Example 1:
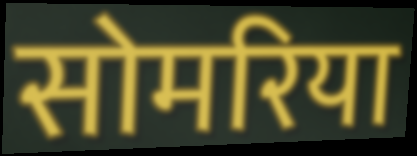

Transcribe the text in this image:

सोमरिया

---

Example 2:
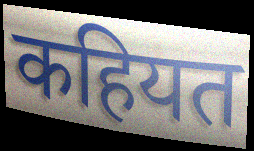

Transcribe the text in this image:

कहियत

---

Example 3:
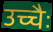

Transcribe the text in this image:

उच्चैः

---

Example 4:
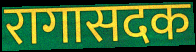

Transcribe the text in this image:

रागासदक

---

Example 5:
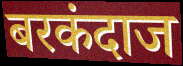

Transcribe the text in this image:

बरकंदाज